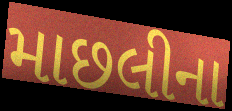
માછલીના